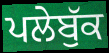
ਪਲੇਬੁੱਕ